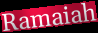
Ramaiah